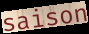
saison